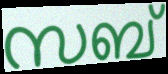
സബ്